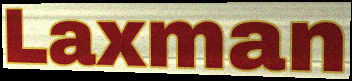
Laxman